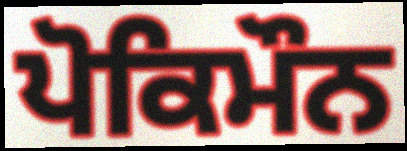
ਪੋਕਿਮੌਨ